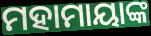
ମହାମାୟାଙ୍କ